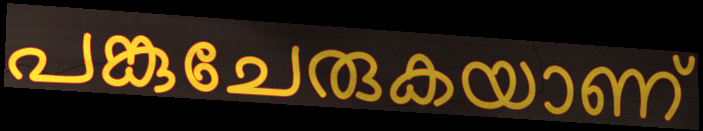
പങ്കുചേരുകയാണ്